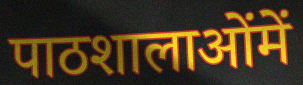
पाठशालाओंमें